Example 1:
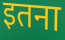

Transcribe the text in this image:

इतना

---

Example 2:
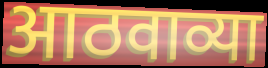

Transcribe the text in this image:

आठवाव्या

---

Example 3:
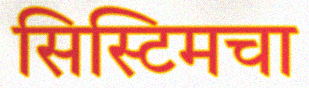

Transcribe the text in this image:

सिस्टिमचा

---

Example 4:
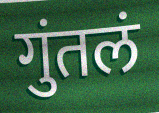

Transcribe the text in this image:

गुंतलं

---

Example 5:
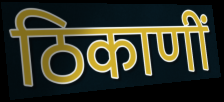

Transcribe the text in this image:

ठिकाणीं